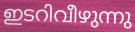
ഇടറിവീഴുന്നു